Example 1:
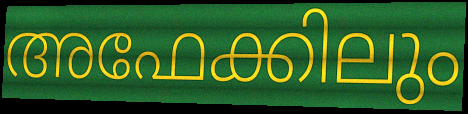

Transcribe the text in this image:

അഫേക്കിലും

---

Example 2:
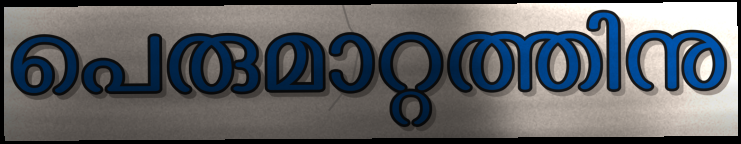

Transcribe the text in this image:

പെരുമാറ്റത്തിനു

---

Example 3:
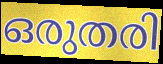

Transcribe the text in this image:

ഒരുതരി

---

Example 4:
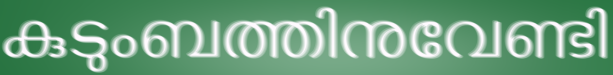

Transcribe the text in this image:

കുടുംബത്തിനുവേണ്ടി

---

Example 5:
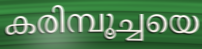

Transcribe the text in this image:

കരിമ്പൂച്ചയെ